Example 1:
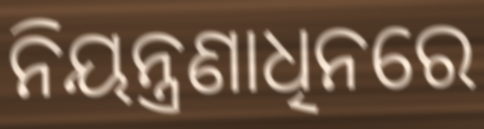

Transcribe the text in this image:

ନିୟନ୍ତ୍ରଣାଧିନରେ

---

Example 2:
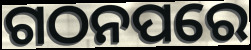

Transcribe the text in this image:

ଗଠନପରେ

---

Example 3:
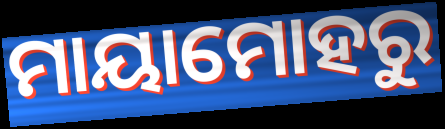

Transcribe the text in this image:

ମାୟାମୋହରୁ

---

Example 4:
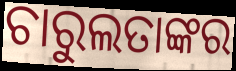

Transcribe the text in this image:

ଚାରୁଲତାଙ୍କର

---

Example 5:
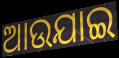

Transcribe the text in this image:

ଆଉଯାଇ